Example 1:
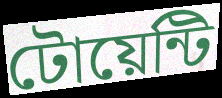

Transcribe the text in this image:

টোয়েন্টি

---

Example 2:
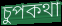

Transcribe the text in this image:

চুপকথা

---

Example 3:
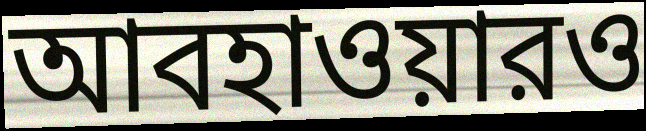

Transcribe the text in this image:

আবহাওয়ারও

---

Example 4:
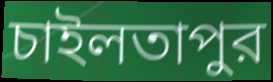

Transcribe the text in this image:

চাইলতাপুর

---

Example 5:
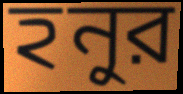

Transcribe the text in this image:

হনুর